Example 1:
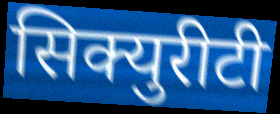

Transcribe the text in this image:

सिक्युरीटी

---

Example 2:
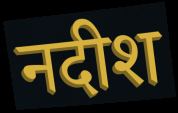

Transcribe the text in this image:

नदीश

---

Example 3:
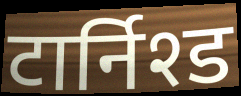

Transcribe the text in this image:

टार्निश्ड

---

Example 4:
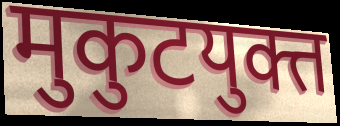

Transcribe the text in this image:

मुकुटयुक्त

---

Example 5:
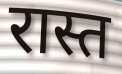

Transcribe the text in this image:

रास्त